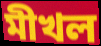
মীখল